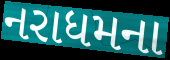
નરાધમના